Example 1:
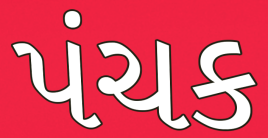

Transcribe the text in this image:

પંચક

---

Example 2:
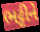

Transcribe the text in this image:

ભટ્ટીને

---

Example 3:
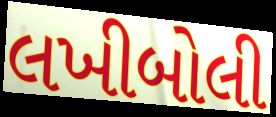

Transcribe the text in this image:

લખીબોલી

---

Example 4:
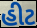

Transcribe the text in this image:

હીટ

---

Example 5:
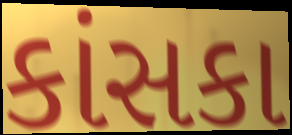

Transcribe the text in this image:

કાંસકા